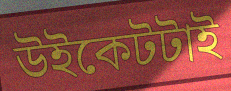
উইকেটটাই